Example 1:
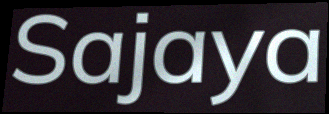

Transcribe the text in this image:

Sajaya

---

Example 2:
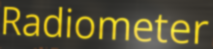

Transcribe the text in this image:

Radiometer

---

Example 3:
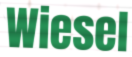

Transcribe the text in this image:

Wiesel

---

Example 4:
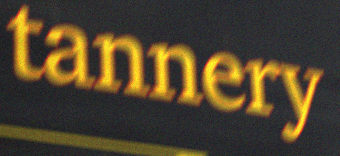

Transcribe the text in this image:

tannery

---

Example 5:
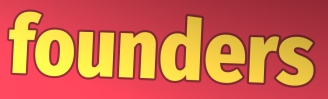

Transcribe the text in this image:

founders